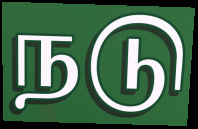
நடு